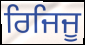
ਰਿਜਿਜੂ